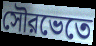
সৌরভেতে